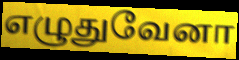
எழுதுவேனா